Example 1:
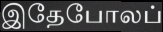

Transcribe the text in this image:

இதேபோலப்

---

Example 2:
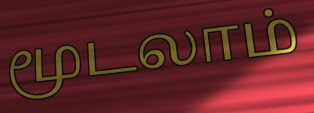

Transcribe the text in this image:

மூடலாம்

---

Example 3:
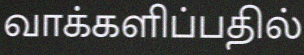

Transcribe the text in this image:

வாக்களிப்பதில்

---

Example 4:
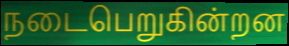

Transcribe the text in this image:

நடைபெறுகின்றன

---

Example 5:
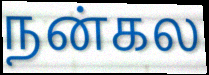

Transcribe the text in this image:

நன்கல